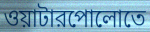
ওয়াটারপোলোতে